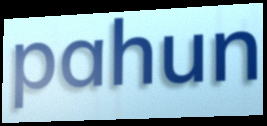
pahun